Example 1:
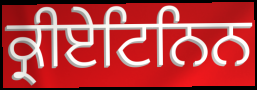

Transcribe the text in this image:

ਕ੍ਰੀਏਟਿਨਿਨ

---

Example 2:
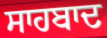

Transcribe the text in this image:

ਸਾਹਬਾਦ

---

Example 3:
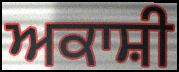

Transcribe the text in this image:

ਅਕਾਸ਼ੀ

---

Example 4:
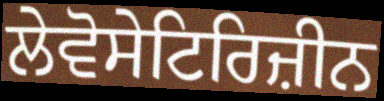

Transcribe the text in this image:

ਲੇਵੋਸੇਟਿਰਿਜ਼ੀਨ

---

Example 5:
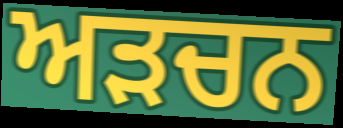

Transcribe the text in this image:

ਅੜਚਨ